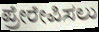
ಪ್ರೇರೇಪಿಸಲು